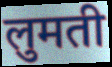
लुमती